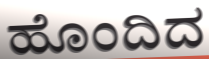
ಹೊಂದಿದ